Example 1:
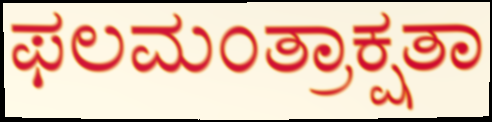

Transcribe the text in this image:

ಫಲಮಂತ್ರಾಕ್ಷತಾ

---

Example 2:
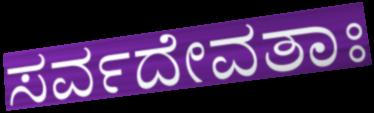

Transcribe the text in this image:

ಸರ್ವದೇವತಾಃ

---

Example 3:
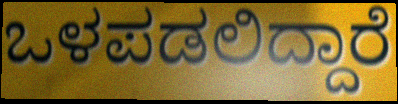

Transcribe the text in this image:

ಒಳಪಡಲಿದ್ದಾರೆ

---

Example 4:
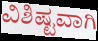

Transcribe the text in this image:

ವಿಶಿಷ್ಟವಾಗಿ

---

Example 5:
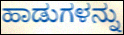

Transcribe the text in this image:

ಹಾಡುಗಳನ್ನು